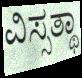
ವಿಸ್ಸತ್ಥಾ